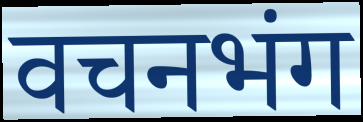
वचनभंग